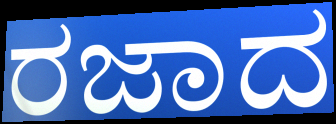
ರಜಾದ